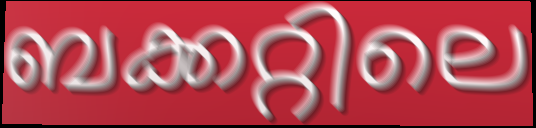
ബക്കറ്റിലെ